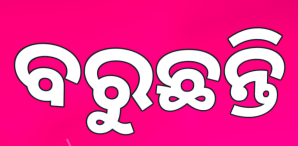
ବରୁଛନ୍ତି